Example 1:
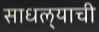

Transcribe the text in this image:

साधल्याची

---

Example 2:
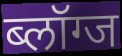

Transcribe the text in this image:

ब्लॉग्ज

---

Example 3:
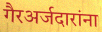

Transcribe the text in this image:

गैरअर्जदारांना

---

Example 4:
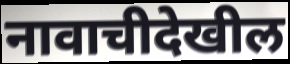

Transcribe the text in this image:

नावाचीदेखील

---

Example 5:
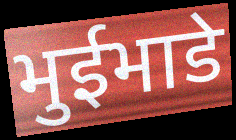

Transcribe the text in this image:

भुईभाडे